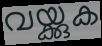
വയ്ക്കുക